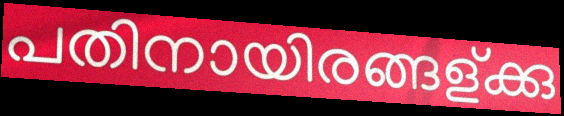
പതിനായിരങ്ങള്ക്കു